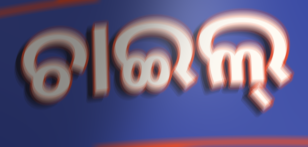
ଚାଇଲ୍